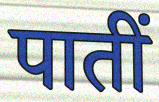
पातीं